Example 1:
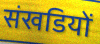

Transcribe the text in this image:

संखडियों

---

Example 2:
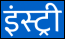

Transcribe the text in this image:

इंस्ट्री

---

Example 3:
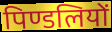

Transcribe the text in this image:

पिण्डलियों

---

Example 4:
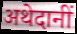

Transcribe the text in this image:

अथेदानीं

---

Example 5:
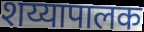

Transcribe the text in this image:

शय्यापालक